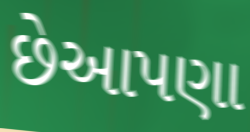
છેઆપણા